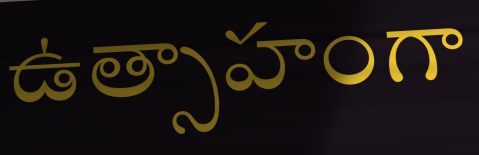
ఉత్సాహంగా